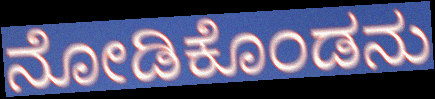
ನೋಡಿಕೊಂಡನು